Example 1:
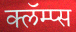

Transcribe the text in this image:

क्लॅम्प्स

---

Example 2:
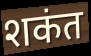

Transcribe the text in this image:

शकंत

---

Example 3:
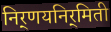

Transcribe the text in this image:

निर्णयनिर्मिती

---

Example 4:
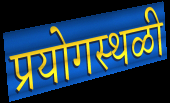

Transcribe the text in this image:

प्रयोगस्थळी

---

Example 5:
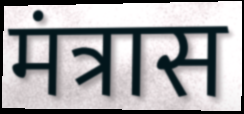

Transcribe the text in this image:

मंत्रास